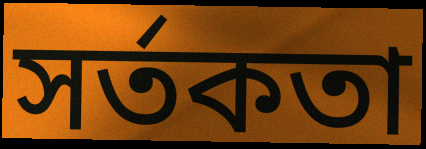
সর্তকতা